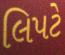
લિપટે